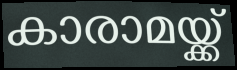
കാരാമയ്ക്ക്